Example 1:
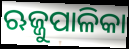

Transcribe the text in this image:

ଋଜ୍ଜୁପାଳିକା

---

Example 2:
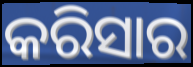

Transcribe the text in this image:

କରିସାର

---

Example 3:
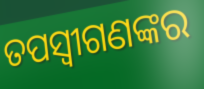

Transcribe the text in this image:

ତପସ୍ୱୀଗଣଙ୍କର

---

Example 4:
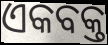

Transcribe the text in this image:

ଏକବକ୍ତ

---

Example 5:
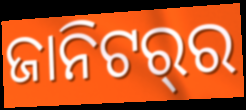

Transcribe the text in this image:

ଜାନିଟର୍‌ର